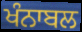
ਖੰਨਾਬਲ